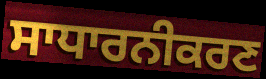
ਸਾਧਾਰਨੀਕਰਣ